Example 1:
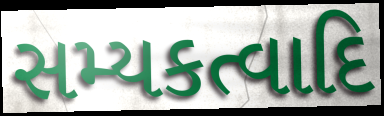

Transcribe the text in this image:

સમ્યકત્વાદિ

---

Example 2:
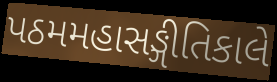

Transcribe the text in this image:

પઠમમહાસઙ્ગીતિકાલે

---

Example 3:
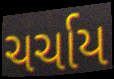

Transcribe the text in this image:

ચર્ચાય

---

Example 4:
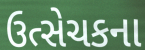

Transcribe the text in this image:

ઉત્સેચકના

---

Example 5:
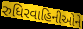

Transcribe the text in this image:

રુધિરવાહિનીઓને